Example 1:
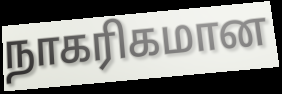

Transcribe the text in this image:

நாகரிகமான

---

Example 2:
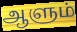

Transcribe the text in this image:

ஆளும்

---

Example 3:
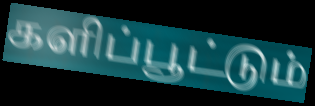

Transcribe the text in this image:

களிப்பூட்டும்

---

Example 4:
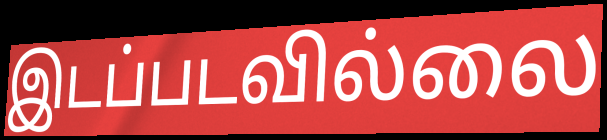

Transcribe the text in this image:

இடப்படவில்லை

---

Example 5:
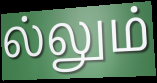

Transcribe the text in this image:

ல்லும்